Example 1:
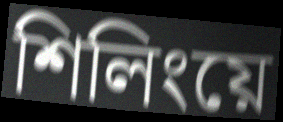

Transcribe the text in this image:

শিলিংয়ে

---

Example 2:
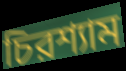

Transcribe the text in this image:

চিরশ্যাম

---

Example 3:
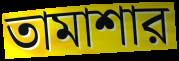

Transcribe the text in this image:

তামাশার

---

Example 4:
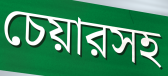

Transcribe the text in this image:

চেয়ারসহ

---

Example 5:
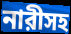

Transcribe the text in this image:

নারীসহ